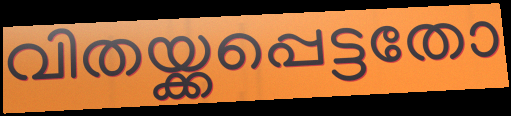
വിതയ്ക്കപ്പെട്ടതോ